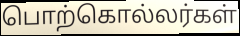
பொற்கொல்லர்கள்